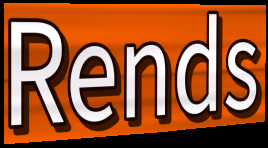
Rends